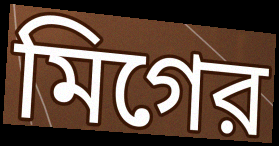
মিগের